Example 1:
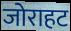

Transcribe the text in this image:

जोराहट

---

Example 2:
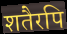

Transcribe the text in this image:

शतैरपि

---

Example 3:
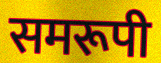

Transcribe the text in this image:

समरूपी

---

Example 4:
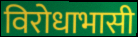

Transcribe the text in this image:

विरोधाभासी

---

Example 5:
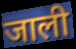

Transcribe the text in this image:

जाली